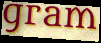
gram